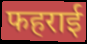
फहराई